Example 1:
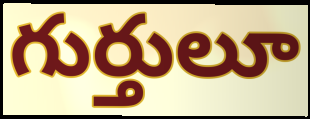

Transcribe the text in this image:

గుర్తులూ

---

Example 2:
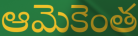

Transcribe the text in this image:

ఆమెకెంత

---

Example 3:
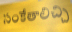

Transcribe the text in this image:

సంకేతాలిచ్చి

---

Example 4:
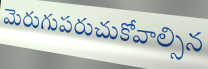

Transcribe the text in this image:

మెరుగుపరుచుకోవాల్సిన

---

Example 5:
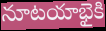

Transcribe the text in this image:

నూటయాభైకి